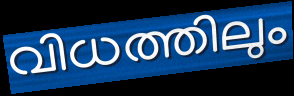
വിധത്തിലും